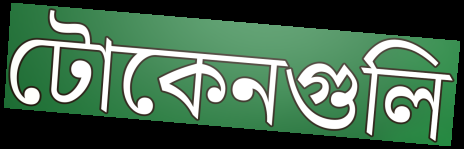
টোকেনগুলি